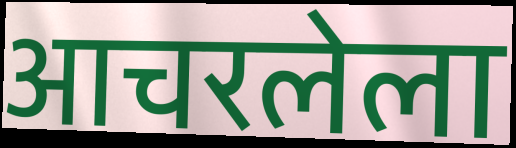
आचरलेला